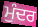
ਮੁੰਦਰ